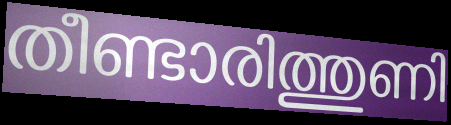
തീണ്ടാരിത്തുണി